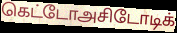
கெட்டோஅசிடோடிக்